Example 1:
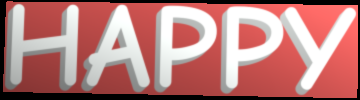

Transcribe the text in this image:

HAPPY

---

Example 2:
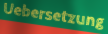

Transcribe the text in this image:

Uebersetzung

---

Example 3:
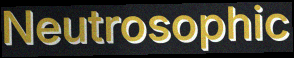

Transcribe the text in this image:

Neutrosophic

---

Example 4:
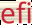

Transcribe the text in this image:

efi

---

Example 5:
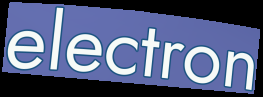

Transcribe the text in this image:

electron